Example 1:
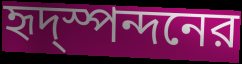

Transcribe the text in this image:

হৃদ্স্পন্দনের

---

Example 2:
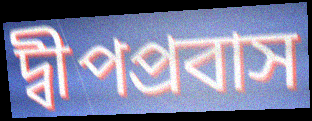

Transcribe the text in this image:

দ্বীপপ্রবাস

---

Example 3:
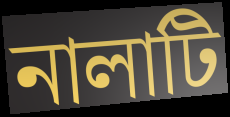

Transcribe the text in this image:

নালাটি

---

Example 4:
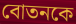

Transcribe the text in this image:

বোতনকে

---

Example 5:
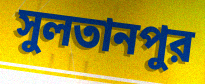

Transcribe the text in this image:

সুলতানপুর